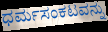
ಧರ್ಮಸಂಕಟವನ್ನು